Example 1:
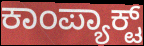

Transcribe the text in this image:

ಕಾಂಪ್ಯಾಕ್ಟ್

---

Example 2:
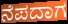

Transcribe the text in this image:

ನೆಪದಾಗ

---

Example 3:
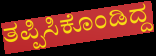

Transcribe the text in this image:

ತಪ್ಪಿಸಿಕೊಂಡಿದ್ದ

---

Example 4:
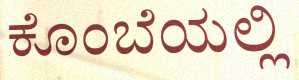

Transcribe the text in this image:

ಕೊಂಬೆಯಲ್ಲಿ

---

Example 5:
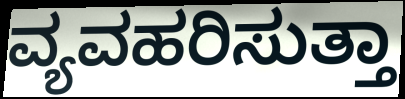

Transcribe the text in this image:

ವ್ಯವಹರಿಸುತ್ತಾ